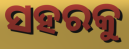
ସହରକୁ